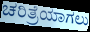
ಚರಿತ್ರೆಯಾಗಲು